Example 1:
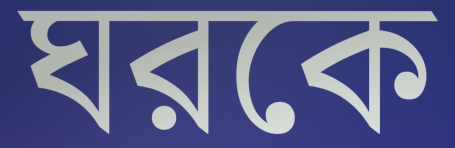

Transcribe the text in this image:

ঘরকে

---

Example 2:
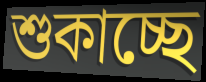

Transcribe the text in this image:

শুকাচ্ছে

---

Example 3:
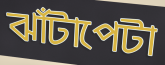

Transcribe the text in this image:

ঝাঁটাপেটা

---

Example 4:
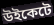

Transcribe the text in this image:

উইকেটে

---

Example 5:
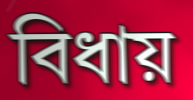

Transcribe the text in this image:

বিধায়